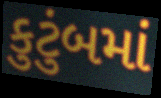
કુટુંબમાં